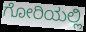
ಗೋರಿಯಲ್ಲಿ